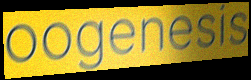
oogenesis